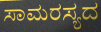
ಸಾಮರಸ್ಯದ